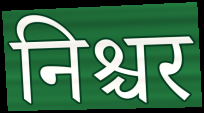
निश्चर